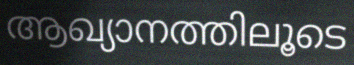
ആഖ്യാനത്തിലൂടെ